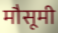
मौसूमी